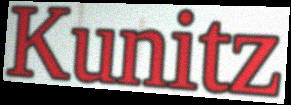
Kunitz